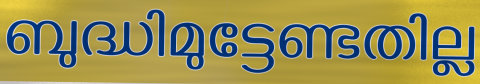
ബുദ്ധിമുട്ടേണ്ടതില്ല